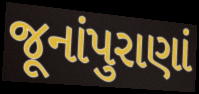
જૂનાંપુરાણાં